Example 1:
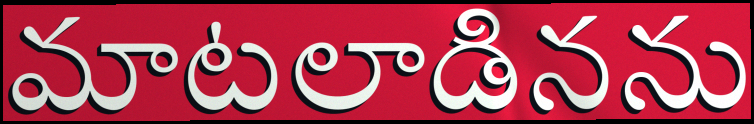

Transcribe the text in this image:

మాటలాడినను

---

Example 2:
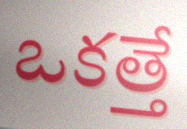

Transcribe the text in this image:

ఒకత్తే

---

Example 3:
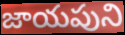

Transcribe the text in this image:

జాయపుని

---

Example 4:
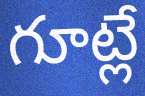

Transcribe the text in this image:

గూట్లే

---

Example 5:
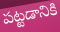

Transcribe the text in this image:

పట్టడానికి